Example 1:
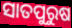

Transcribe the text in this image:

ସାତପୁରୁଷ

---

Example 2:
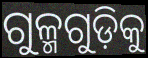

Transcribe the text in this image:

ଗୁଳ୍ମଗୁଡ଼ିକୁ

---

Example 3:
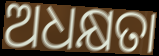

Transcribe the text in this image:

ଅଧକ୍ଷତା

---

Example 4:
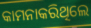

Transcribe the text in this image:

କାମନାକରିଥିଲେ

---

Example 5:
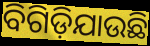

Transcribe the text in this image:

ବିଗିଡ଼ିଯାଉଛି